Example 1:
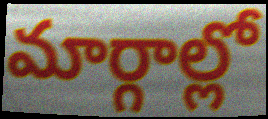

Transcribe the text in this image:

మార్గాల్లో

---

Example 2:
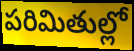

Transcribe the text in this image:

పరిమితుల్లో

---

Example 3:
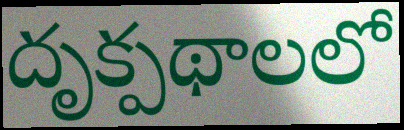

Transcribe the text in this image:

దృక్పథాలలో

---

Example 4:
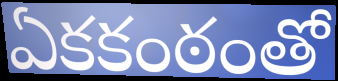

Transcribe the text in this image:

ఏకకంఠంతో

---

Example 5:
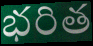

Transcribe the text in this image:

భరిత